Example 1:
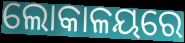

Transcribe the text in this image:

ଲୋକାଳୟରେ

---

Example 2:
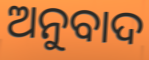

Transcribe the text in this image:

ଅନୁବାଦ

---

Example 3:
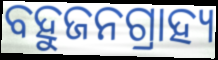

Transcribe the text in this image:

ବହୁଜନଗ୍ରାହ୍ୟ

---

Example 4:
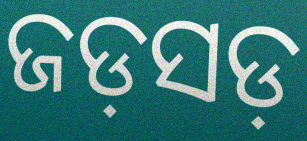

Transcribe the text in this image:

ଜଡ଼ସଡ଼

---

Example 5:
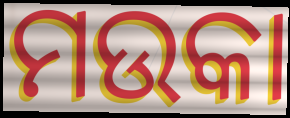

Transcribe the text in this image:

ମଉକା